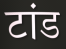
टांड